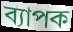
ব্যাপক